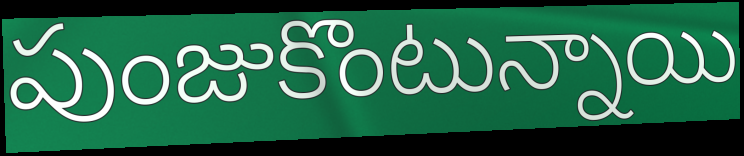
పుంజుకొంటున్నాయి